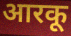
आरकू